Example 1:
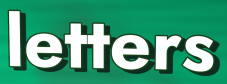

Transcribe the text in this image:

letters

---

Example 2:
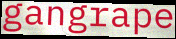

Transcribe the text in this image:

gangrape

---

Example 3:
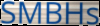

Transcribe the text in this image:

SMBHs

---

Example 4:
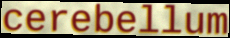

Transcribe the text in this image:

cerebellum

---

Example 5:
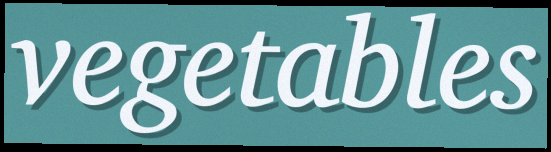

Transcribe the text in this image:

vegetables